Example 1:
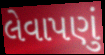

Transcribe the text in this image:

લેવાપણું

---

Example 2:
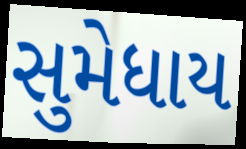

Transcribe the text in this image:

સુમેધાય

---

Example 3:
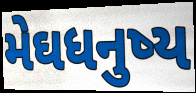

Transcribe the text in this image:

મેઘધનુષ્ય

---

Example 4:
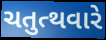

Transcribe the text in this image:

ચતુત્થવારે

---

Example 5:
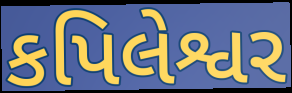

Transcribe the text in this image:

કપિલેશ્વર